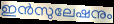
ഇൻസുലേഷനും